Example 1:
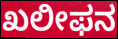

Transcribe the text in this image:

ಖಲೀಫನ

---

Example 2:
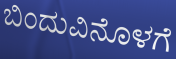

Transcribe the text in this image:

ಬಿಂದುವಿನೊಳಗೆ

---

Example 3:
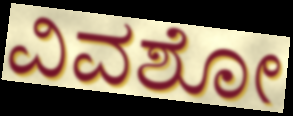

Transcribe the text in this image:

ವಿವಶೋ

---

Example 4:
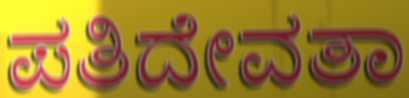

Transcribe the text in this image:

ಪತಿದೇವತಾ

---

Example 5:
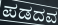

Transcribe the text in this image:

ಪಡದವ